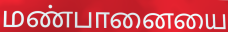
மண்பானையை